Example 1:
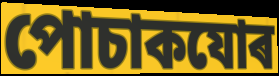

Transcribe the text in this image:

পোচাকযোৰ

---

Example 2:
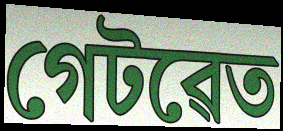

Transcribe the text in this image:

গেটৱেত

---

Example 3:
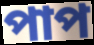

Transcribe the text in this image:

পাপ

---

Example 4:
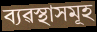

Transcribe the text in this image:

ব্যৱস্থাসমূহ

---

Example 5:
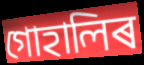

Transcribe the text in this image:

গোহালিৰ